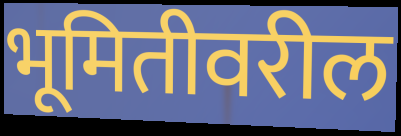
भूमितीवरील